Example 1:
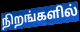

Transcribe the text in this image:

நிறங்களில்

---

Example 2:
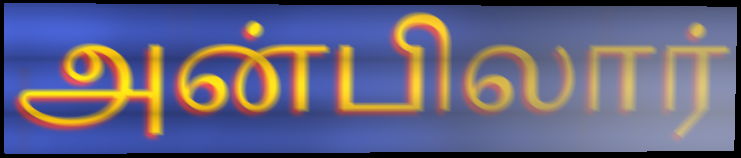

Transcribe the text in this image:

அன்பிலார்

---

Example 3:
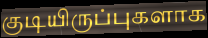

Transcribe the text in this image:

குடியிருப்புகளாக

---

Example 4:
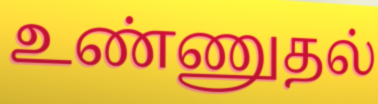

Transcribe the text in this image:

உண்ணுதல்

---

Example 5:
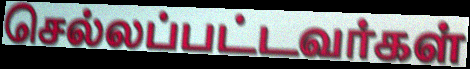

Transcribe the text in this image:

செல்லப்பட்டவர்கள்